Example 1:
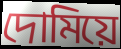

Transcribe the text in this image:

দোমিয়ে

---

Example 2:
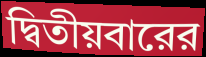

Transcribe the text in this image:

দ্বিতীয়বারের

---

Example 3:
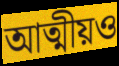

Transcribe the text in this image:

আত্মীয়ও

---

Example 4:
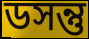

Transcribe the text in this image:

ডসন্তু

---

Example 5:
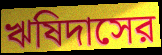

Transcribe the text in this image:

ঋষিদাসের